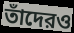
তাঁদেরও